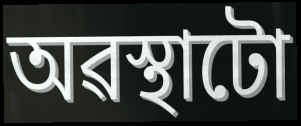
অৱস্থাটো